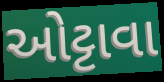
ઓટ્ટાવા